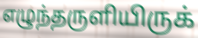
எழுந்தருளியிருக்